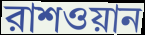
রাশওয়ান